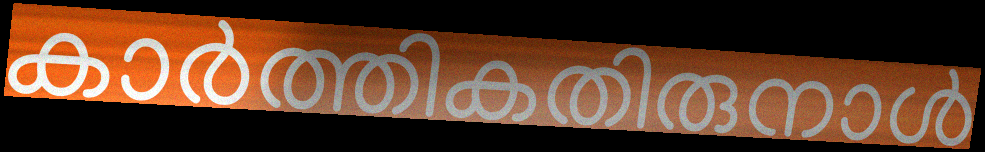
കാർത്തികതിരുനാൾ